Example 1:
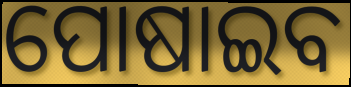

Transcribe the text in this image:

ପୋଷାଇବ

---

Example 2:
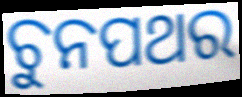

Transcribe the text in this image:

ଚୁନପଥର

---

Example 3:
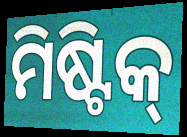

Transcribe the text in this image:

ମିଷ୍ଟିକ୍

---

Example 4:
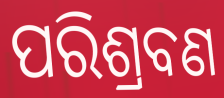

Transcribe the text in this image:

ପରିଶ୍ରବଣ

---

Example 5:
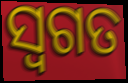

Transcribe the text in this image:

ସ୍ଵଗତ